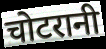
चोटरानी